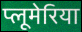
प्लूमेरिया